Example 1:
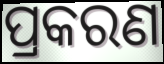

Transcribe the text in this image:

ପ୍ରକରଣ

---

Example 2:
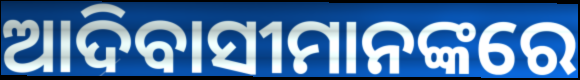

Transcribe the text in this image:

ଆଦିବାସୀମାନଙ୍କରେ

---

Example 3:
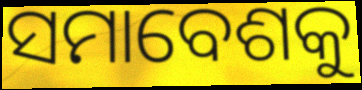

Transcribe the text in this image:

ସମାବେଶକୁ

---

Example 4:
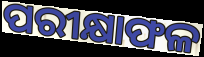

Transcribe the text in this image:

ପରୀକ୍ଷାଫଳ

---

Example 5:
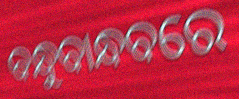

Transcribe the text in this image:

ବନ୍ଧୁବାନ୍ଧବରେ